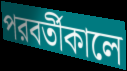
পরবর্তীকালে